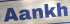
Aankh